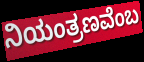
ನಿಯಂತ್ರಣವೆಂಬ